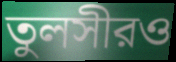
তুলসীরও